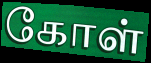
கோள்